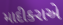
માદીકરાએ